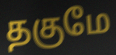
தகுமே